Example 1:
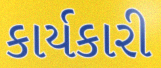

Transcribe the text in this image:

કાર્યકારી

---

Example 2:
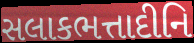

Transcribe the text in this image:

સલાકભત્તાદીનિ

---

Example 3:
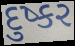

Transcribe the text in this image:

દુષ્કર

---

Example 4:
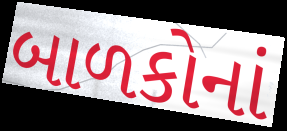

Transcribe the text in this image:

બાળકોનાં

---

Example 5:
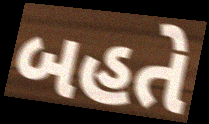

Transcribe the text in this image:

બહતે